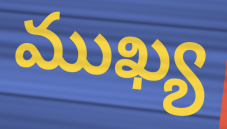
ముఖ్య